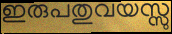
ഇരുപതുവയസ്സു